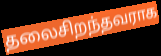
தலைசிறந்தவராக